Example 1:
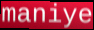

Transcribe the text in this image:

maniye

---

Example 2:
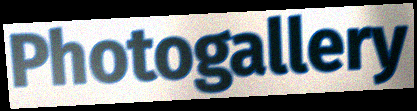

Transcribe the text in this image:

Photogallery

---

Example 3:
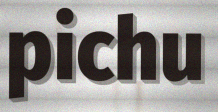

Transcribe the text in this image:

pichu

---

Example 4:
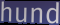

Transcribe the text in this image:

hund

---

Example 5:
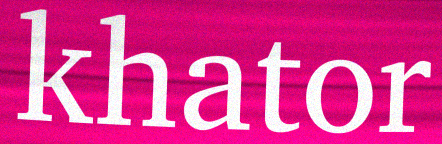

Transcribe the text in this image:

khator